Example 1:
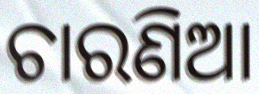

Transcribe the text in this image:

ଚାରଣିଆ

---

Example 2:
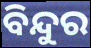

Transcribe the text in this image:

ବିନ୍ଦୁର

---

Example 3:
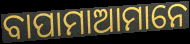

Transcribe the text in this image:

ବାପାମାଆମାନେ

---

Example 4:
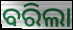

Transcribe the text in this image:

ବରିଲା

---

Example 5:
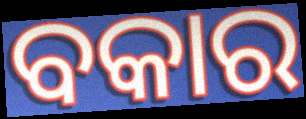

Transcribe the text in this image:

ବକାର